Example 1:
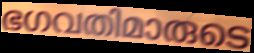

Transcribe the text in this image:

ഭഗവതിമാരുടെ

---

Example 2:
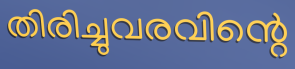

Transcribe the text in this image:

തിരിച്ചുവരവിന്റെ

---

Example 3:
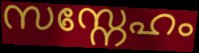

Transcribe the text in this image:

സസ്നേഹം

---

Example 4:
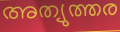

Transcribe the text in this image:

അത്യുത്തര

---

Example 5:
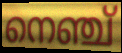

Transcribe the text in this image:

നെഞ്ച്